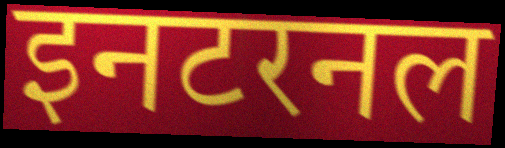
इनटरनल